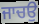
ਜਾਚਉ